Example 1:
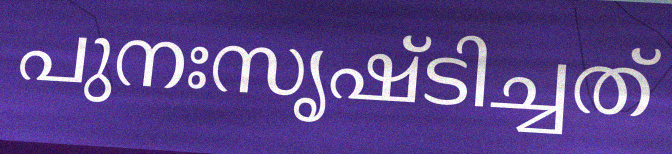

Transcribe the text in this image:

പുനഃസൃഷ്ടിച്ചത്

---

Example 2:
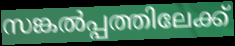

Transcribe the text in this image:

സങ്കൽപ്പത്തിലേക്ക്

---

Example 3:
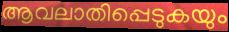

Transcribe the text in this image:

ആവലാതിപ്പെടുകയും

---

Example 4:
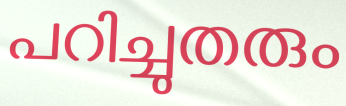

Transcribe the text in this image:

പറിച്ചുതരും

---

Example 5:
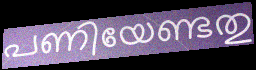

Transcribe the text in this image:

പണിയേണ്ടതു